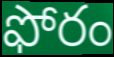
ఫోరం